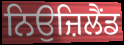
ਨਿਉਜ਼ਿਲੈਂਡ